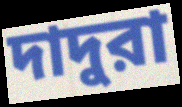
দাদুরা